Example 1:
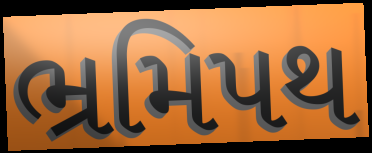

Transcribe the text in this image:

ભ્રમિપથ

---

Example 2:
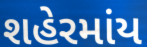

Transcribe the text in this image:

શહેરમાંય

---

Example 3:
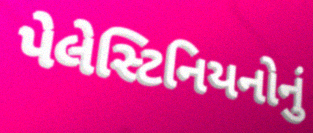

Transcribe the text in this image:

પેલેસ્ટિનિયનોનું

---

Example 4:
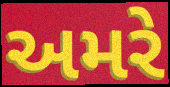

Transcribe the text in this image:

અમરે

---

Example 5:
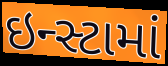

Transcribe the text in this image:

ઇન્સ્ટામાં